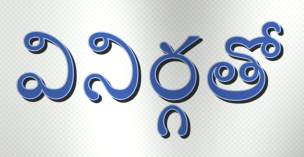
వినిర్గతో